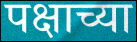
पक्षाच्या